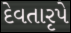
દેવતારૃપે